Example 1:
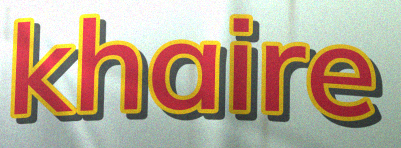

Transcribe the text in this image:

khaire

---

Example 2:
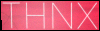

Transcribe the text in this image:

THNX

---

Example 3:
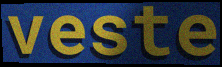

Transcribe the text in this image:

veste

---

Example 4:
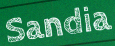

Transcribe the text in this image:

Sandia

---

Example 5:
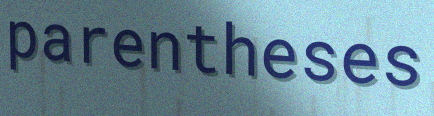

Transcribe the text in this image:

parentheses